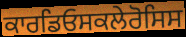
ਕਾਰਡਿਓਸਕਲੇਰੋਸਿਸ